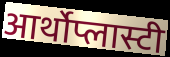
आर्थोप्लास्टी